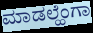
ಮಾಡಲ್ಹೆಂಗಾ